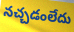
నచ్చడంలేదు